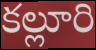
కల్లూరి